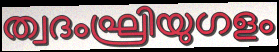
ത്വദംഘ്രിയുഗളം